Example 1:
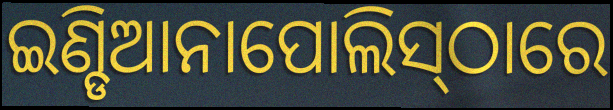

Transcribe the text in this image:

ଇଣ୍ଡିଆନାପୋଲିସ୍‍ଠାରେ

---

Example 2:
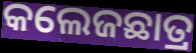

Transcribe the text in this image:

କଲେଜଛାତ୍ର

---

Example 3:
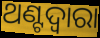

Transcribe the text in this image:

ଥଣ୍ଟଦ୍ୱାରା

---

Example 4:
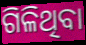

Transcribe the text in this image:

ଗିଳିଥିବା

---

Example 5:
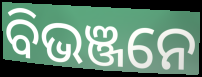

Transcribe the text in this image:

ବିଭଞ୍ଜନେ